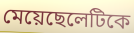
মেয়েছেলেটিকে